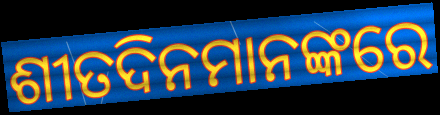
ଶୀତଦିନମାନଙ୍କରେ